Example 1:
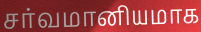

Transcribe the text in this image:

சர்வமானியமாக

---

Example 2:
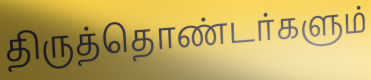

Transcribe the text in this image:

திருத்தொண்டர்களும்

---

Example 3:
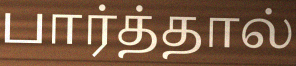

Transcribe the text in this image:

பார்த்தால்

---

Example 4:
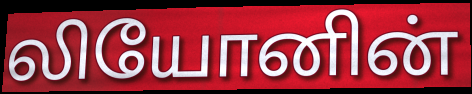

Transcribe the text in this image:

லியோனின்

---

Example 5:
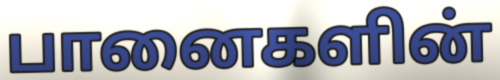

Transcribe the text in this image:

பானைகளின்